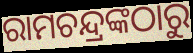
ରାମଚନ୍ଦ୍ରଙ୍କଠାରୁ